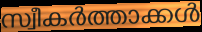
സ്വീകർത്താക്കൾ